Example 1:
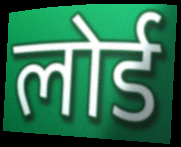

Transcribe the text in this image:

लोर्ड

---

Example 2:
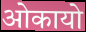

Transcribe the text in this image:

ओकायो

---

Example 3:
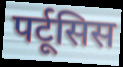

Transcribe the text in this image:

पर्टूसिस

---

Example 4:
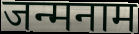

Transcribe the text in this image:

जन्मनाम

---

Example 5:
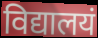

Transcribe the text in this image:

विद्यालयं